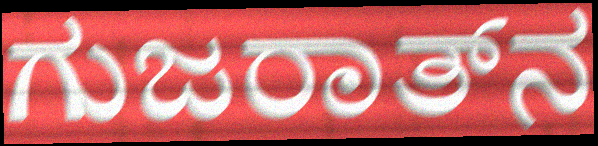
ಗುಜರಾತ್‌ನ